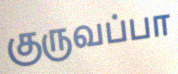
குருவப்பா